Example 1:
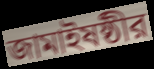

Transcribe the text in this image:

জামাইষষ্ঠীর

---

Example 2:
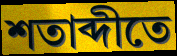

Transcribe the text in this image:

শতাব্দীতে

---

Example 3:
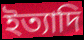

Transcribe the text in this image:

ইত্যাদি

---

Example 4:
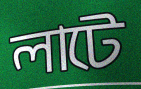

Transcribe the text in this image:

লাটে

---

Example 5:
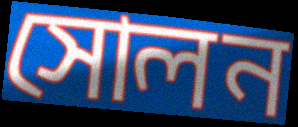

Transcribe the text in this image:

সোলন